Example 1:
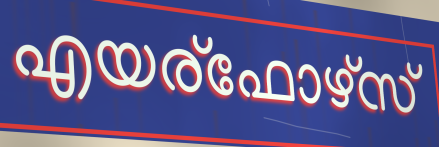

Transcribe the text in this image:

എയര്ഫോഴ്സ്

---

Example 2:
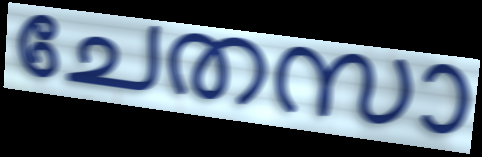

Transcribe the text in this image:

ചേതസാ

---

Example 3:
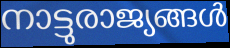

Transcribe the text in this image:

നാട്ടുരാജ്യങ്ങൾ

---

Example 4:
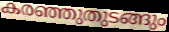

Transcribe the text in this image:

കരഞ്ഞുതുടങ്ങും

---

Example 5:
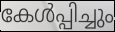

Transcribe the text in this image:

കേൾപ്പിച്ചും